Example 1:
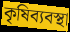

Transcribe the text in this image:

কৃষিব্যবস্থা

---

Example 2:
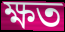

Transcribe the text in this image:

ক্ষত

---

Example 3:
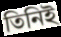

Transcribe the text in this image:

তিনিই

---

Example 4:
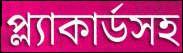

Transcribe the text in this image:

প্ল্যাকার্ডসহ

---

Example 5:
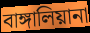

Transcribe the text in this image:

বাঙ্গালিয়ানা